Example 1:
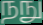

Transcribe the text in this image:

நநு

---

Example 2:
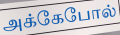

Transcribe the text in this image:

அக்கேபோல்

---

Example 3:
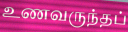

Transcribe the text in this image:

உணவருந்தப்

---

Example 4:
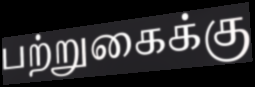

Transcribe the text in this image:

பற்றுகைக்கு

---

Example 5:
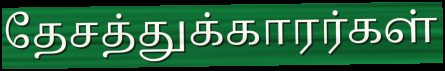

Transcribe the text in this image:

தேசத்துக்காரர்கள்